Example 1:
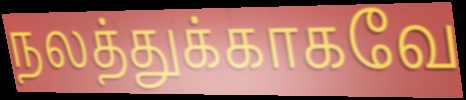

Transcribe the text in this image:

நலத்துக்காகவே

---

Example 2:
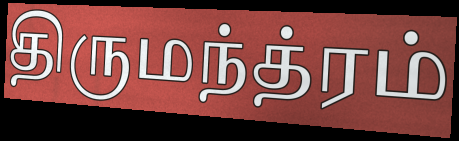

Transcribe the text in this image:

திருமந்த்ரம்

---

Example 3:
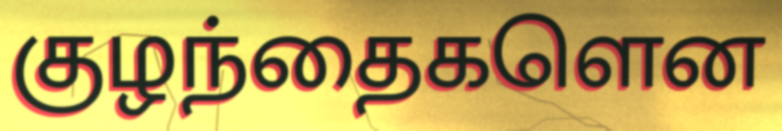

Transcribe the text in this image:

குழந்தைகளென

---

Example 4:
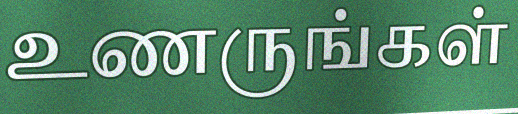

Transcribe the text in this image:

உணருங்கள்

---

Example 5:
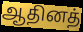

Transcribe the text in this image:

ஆதினத்